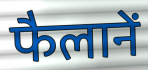
फैलानें